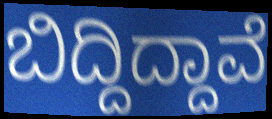
ಬಿದ್ದಿದ್ದಾವೆ